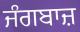
ਜੰਗਬਾਜ਼